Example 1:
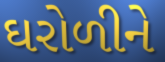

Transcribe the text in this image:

ઘરોળીને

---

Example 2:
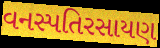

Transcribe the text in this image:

વનસ્પતિરસાયણ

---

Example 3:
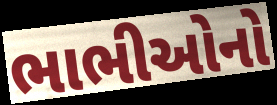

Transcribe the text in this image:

ભાભીઓનો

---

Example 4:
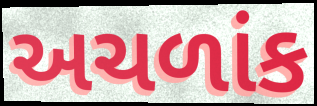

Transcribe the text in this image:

અચળાંક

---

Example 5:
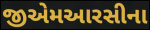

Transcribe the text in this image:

જીએમઆરસીના